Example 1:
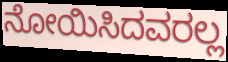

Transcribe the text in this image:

ನೋಯಿಸಿದವರಲ್ಲ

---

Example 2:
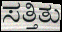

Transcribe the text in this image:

ಸತ್ತಿತು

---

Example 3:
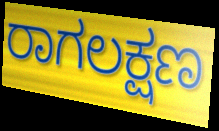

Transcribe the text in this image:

ರಾಗಲಕ್ಷಣ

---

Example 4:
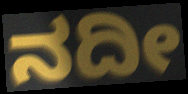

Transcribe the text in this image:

ನದೀ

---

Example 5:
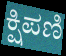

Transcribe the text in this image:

ಕ್ಷಿಪಣಿ